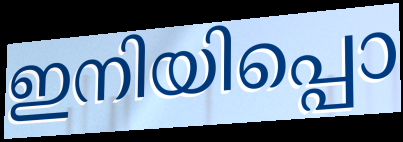
ഇനിയിപ്പൊ